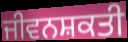
ਜੀਵਨਸ਼ਕਤੀ